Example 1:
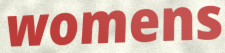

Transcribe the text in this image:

womens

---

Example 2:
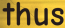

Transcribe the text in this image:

thus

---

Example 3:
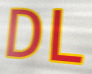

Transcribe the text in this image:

DL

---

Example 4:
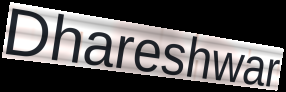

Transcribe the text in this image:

Dhareshwar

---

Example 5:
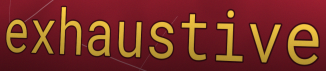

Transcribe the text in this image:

exhaustive